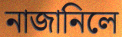
নাজানিলে